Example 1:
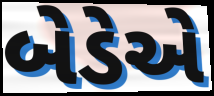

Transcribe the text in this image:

બેડેએ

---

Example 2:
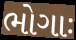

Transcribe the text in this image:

ભોગાઃ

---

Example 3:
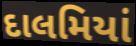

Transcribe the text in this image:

દાલમિયાં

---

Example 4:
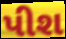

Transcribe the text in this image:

પીશ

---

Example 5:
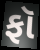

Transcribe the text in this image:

ફૉ